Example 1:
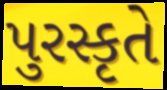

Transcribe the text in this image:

પુરસ્કૃતે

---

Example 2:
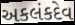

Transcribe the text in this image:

અકલંકદેવ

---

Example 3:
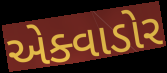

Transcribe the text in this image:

એક્વાડોર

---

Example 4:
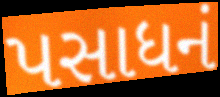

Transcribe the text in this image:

પસાધનં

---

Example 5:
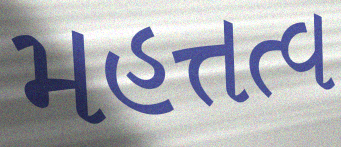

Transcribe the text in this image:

મહત્તત્વ